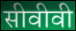
सीवीवी